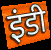
इंडी